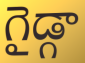
గైడ్గా